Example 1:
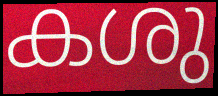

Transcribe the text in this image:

കശു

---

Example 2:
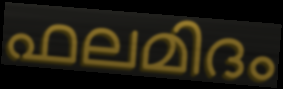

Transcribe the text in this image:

ഫലമിദം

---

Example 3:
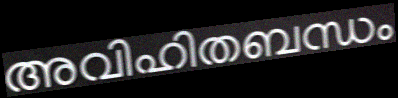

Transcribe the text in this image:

അവിഹിതബന്ധം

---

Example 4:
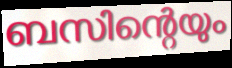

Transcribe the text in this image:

ബസിന്റെയും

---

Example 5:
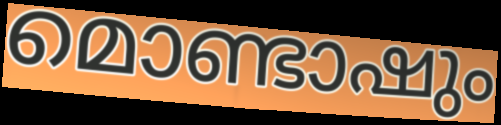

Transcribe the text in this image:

മൊണ്ടാഷും